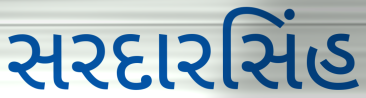
સરદારસિંહ